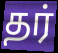
தர்